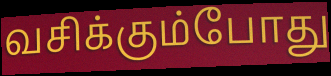
வசிக்கும்போது